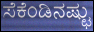
ಸೆಕೆಂಡಿನಷ್ಟು